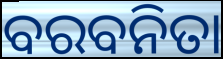
ବରବନିତା